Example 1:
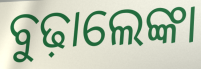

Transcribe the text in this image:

ବୁଢ଼ାଲେଙ୍କା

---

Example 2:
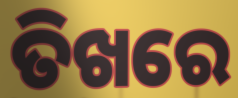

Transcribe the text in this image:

ତିଖରେ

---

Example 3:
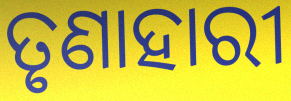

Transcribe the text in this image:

ତୃଣାହାରୀ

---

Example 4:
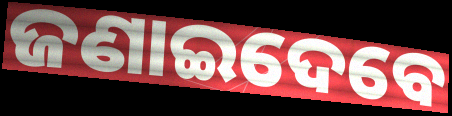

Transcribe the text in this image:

ଜଣାଇଦେବେ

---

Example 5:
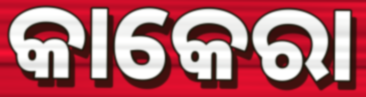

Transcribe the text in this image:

କାକେରା